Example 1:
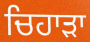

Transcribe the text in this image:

ਚਿਹਾੜਾ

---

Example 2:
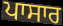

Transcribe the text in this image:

ਪਾਸਾਰ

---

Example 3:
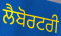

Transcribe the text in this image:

ਲੈਬੋਰਟਰੀ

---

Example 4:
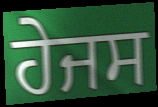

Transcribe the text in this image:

ਹੇਜਸ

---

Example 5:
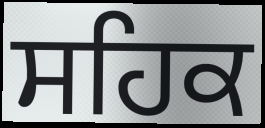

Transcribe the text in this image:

ਸਹਿਕ